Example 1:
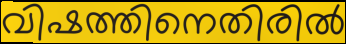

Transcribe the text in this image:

വിഷത്തിനെതിരിൽ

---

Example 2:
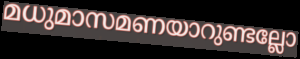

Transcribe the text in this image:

മധുമാസമണയാറുണ്ടല്ലോ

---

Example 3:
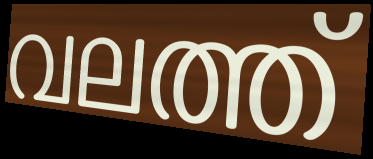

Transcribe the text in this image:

വലത്ത്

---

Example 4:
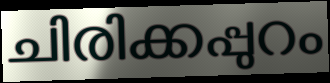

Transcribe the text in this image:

ചിരിക്കപ്പുറം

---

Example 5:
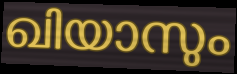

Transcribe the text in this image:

ഖിയാസും